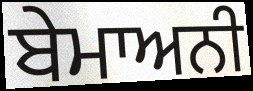
ਬੇਮਾਅਨੀ